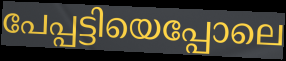
പേപ്പട്ടിയെപ്പോലെ